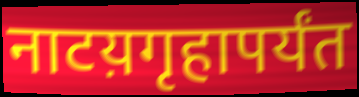
नाटय़गृहापर्यंत